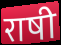
राषी